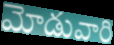
మోడువారి